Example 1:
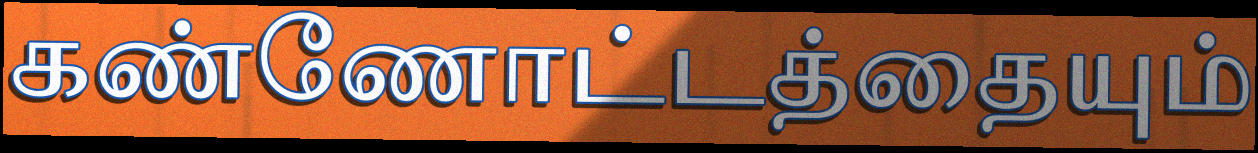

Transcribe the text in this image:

கண்ணோட்டத்தையும்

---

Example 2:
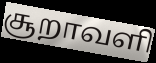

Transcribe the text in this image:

சூறாவளி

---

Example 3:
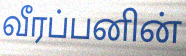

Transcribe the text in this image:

வீரப்பனின்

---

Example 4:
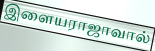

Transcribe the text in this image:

இளையராஜாவால்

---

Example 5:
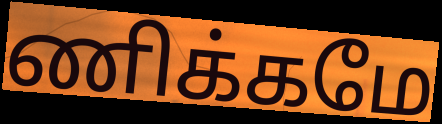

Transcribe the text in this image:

ணிக்கமே